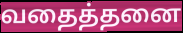
வதைத்தனை